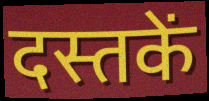
दस्तकें